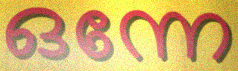
ഒന്നേ